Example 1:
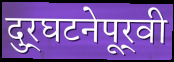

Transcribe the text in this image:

दुर्घटनेपूर्वी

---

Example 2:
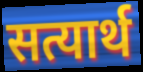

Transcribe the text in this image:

सत्यार्थ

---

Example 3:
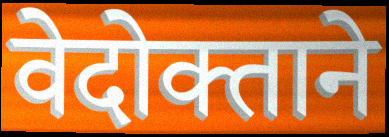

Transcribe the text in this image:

वेदोक्ताने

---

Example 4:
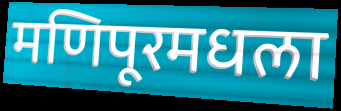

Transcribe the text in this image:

मणिपूरमधला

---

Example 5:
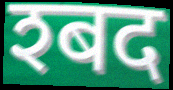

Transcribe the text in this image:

श्बद